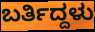
ಬರ್ತಿದ್ದಳು